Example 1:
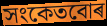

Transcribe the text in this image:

সংকেতবোৰ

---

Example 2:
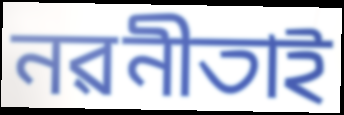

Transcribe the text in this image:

নৱনীতাই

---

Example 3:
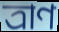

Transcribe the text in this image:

ত্ৰাণ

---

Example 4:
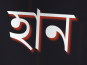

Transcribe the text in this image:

হান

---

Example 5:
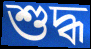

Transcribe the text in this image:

শুদ্ধ